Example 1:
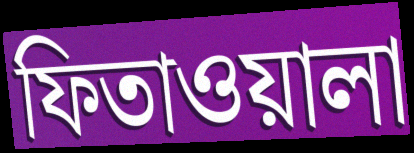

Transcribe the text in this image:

ফিতাওয়ালা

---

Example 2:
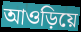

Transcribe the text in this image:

আওড়িয়ে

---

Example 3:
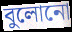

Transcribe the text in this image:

বুলোনো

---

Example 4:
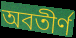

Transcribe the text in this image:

অবতীর্ণ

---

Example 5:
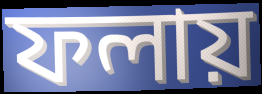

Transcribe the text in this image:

ফলায়